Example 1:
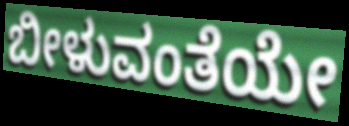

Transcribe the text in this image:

ಬೀಳುವಂತೆಯೇ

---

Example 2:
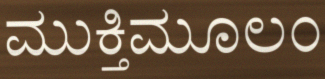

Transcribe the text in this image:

ಮುಕ್ತಿಮೂಲಂ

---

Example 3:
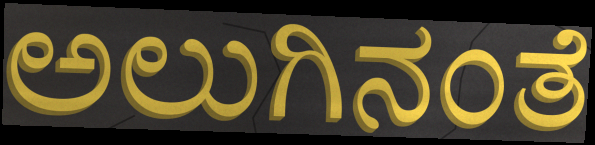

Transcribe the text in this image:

ಅಲುಗಿನಂತೆ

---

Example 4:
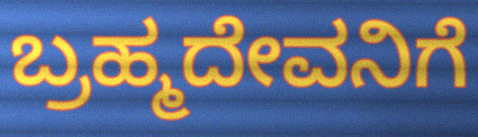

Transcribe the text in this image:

ಬ್ರಹ್ಮದೇವನಿಗೆ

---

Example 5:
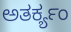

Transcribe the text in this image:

ಅತರ್ಕ್ಯಂ